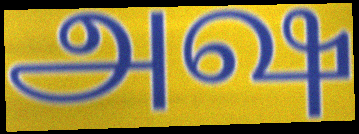
அஷ